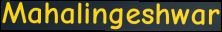
Mahalingeshwar